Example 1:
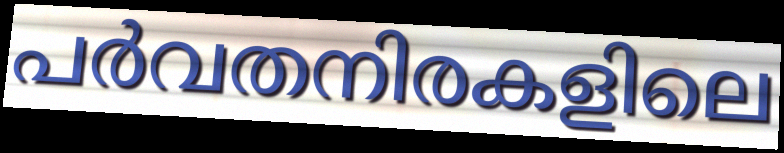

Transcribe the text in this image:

പർവതനിരകളിലെ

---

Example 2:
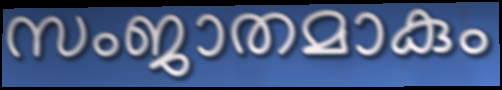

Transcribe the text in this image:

സംജാതമാകും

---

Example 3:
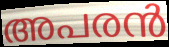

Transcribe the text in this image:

അപരൻ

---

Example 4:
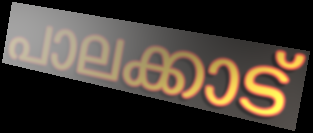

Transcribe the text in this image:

പാലക്കാട്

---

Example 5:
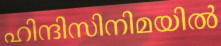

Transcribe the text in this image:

ഹിന്ദിസിനിമയിൽ